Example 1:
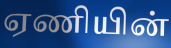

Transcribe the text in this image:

ஏணியின்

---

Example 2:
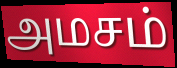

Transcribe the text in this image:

அமசம்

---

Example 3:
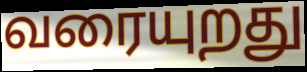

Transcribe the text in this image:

வரையுறது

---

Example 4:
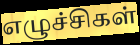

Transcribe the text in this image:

எழுச்சிகள்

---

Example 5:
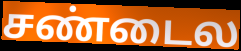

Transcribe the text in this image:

சண்டைல